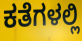
ಕತೆಗಳಲ್ಲಿ